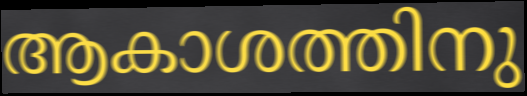
ആകാശത്തിനു